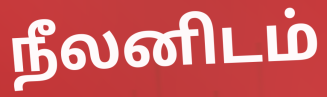
நீலனிடம்